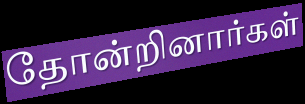
தோன்றினார்கள்